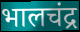
भालचंद्र